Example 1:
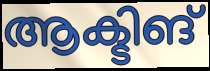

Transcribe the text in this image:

ആക്ടിങ്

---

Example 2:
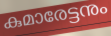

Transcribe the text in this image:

കുമാരേട്ടനും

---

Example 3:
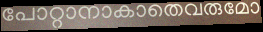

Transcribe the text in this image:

പോറ്റാനാകാതെവരുമോ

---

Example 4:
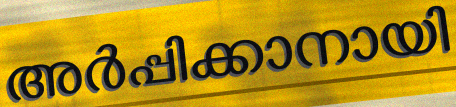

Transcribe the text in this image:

അർപ്പിക്കാനായി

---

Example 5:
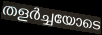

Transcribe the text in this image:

തളർച്ചയോടെ